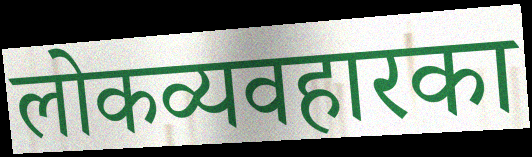
लोकव्यवहारका